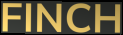
FINCH